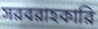
সরবরাহকারি